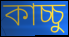
কাচ্চু